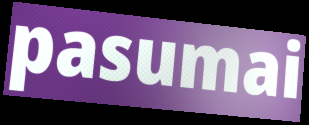
pasumai